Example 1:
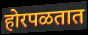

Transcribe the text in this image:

होरपळतात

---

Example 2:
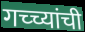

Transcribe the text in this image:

गच्च्यांची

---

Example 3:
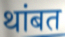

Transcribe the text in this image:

थांबत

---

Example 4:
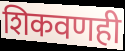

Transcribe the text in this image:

शिकवणही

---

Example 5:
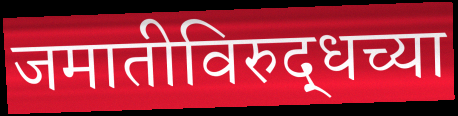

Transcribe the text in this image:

जमातीविरुद्धच्या